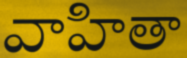
వాహితా